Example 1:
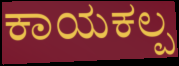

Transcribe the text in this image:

ಕಾಯಕಲ್ಪ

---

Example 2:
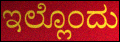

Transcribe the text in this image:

ಇಲ್ಲೊಂದು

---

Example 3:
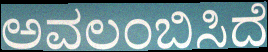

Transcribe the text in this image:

ಅವಲಂಬಿಸಿದೆ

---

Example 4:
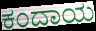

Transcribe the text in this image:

ಕಂದಾಯ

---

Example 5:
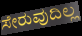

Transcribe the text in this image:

ಸೇರುವುದಿಲ್ಲ